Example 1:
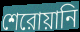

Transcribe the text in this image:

শেরোয়ানি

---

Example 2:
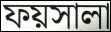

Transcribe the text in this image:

ফয়সালা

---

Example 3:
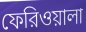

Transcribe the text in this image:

ফেরিওয়ালা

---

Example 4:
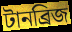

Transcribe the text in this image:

টানব্রিজ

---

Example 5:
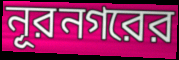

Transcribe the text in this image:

নূরনগরের